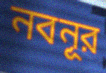
নবনূর